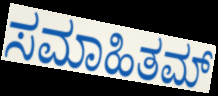
ಸಮಾಹಿತಮ್